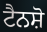
ਟੈਨਸ਼ੋ